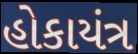
હોકાયંત્ર